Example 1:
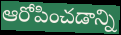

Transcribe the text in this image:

ఆరోపించడాన్ని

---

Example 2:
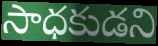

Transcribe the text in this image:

సాధకుడని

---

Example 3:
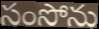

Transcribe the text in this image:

సంసోను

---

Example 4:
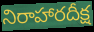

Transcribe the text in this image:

నిరాహారదీక్ష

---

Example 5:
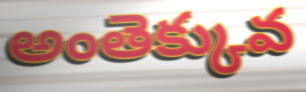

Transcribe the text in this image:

అంతెక్కువ